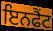
ਇਨਫੈਂਟ